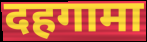
दहगामा